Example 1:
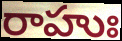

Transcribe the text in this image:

రాహుః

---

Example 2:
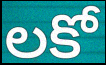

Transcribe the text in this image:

లకో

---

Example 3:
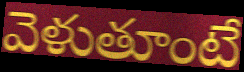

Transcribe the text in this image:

వెళుతూంటే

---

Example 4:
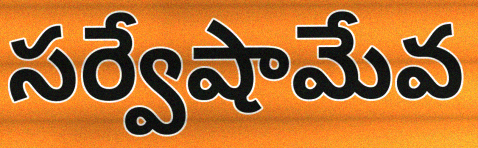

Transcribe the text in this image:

సర్వేషామేవ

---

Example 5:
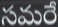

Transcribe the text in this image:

సమరే